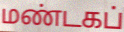
மண்டகப்